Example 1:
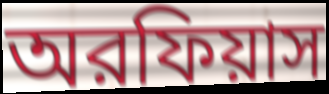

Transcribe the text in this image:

অরফিয়াস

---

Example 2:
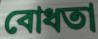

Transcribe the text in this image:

বোধতা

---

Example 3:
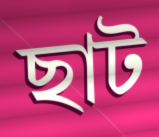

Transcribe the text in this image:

ছাট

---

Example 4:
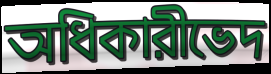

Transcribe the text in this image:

অধিকারীভেদ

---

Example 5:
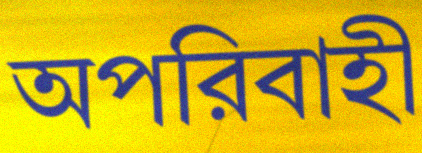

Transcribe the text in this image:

অপরিবাহী